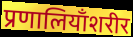
प्रणालियाँशरीर